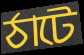
ঠাটে